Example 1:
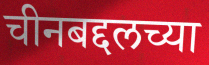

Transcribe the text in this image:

चीनबद्दलच्या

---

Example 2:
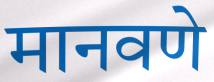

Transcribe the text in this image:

मानवणे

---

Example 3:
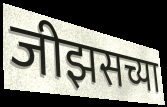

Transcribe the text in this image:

जीझसच्या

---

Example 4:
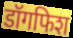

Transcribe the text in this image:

डॉगफिश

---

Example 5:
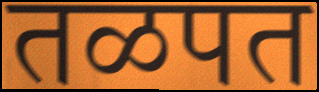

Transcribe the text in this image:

तळपत